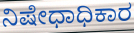
ನಿಷೇಧಾಧಿಕಾರ